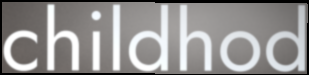
childhod